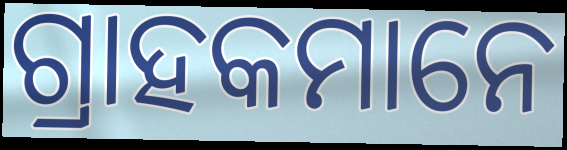
ଗ୍ରାହକମାନେ